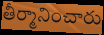
తీర్మానించారు